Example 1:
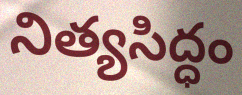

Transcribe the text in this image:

నిత్యసిద్ధం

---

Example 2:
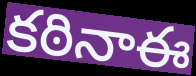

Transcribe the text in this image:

కఠినాఈ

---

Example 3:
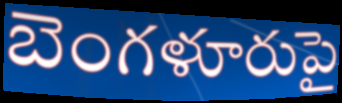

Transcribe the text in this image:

బెంగళూరుపై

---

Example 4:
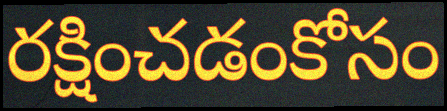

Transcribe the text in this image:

రక్షించడంకోసం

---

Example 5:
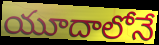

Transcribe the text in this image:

యూదాలోనే